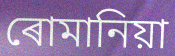
ৰোমানিয়া